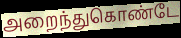
அறைந்துகொண்டே